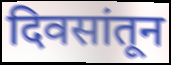
दिवसांतून